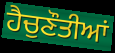
ਹੈਚੁਣੌਤੀਆਂ